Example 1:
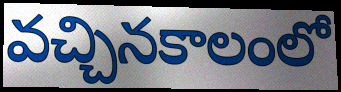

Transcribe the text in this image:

వచ్చినకాలంలో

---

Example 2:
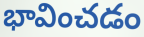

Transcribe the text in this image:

భావించడం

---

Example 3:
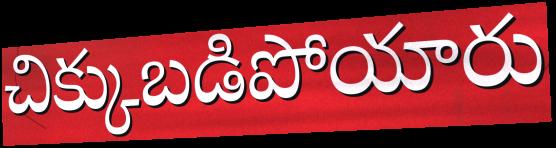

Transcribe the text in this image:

చిక్కుబడిపోయారు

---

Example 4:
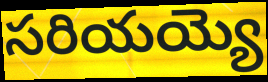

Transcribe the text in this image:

సరియయ్యె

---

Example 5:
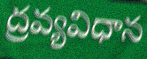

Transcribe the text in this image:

ద్రవ్యవిధాన